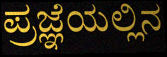
ಪ್ರಜ್ಞೆಯಲ್ಲಿನ